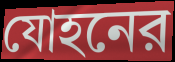
যোহনের